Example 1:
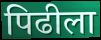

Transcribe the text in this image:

पिढीला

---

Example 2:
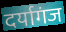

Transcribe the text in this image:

दर्यागंज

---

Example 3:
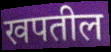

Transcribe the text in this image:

खपतील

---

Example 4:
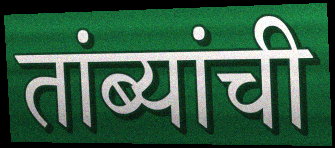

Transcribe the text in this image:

तांब्यांची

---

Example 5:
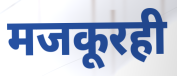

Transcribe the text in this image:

मजकूरही